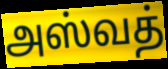
அஸ்வத்